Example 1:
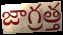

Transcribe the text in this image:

జాగ్రత్త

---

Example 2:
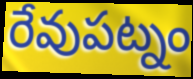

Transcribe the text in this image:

రేవుపట్నం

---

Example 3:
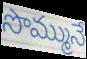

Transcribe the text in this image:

సొమ్మునే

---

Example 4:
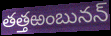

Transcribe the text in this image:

తత్తఱంబునన్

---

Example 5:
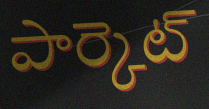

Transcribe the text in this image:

పార్కెట్